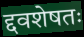
द्दवशेषतः